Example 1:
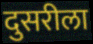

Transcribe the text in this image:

दुसरीला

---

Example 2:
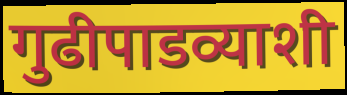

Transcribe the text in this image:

गुढीपाडव्याशी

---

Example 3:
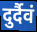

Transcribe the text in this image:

दुर्दैवं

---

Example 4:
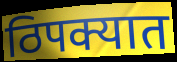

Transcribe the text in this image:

ठिपक्यात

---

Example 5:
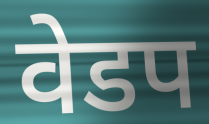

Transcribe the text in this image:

वेडप